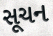
સૂચન